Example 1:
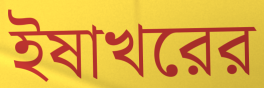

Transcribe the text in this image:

ইষাখরের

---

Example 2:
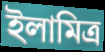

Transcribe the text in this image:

ইলামিত্র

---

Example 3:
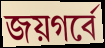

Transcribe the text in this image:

জয়গর্বে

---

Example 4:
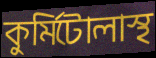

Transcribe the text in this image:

কুর্মিটোলাস্থ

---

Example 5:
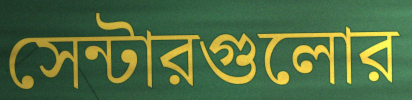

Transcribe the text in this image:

সেন্টারগুলোর